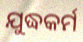
ଯୁଦ୍ଧକର୍ମ